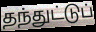
தந்துட்டுப்